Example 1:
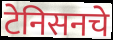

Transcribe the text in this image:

टेनिसनचे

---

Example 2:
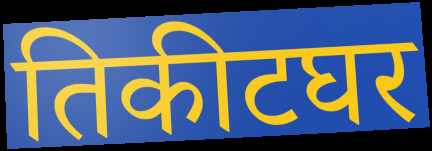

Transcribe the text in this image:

तिकीटघर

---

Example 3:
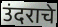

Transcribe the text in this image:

उंदराचे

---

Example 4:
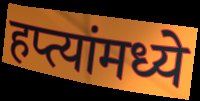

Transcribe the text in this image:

हप्त्यांमध्ये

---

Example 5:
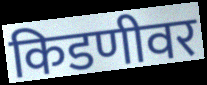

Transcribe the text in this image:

किडणीवर